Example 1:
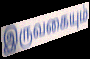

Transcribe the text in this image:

இருவகையும்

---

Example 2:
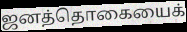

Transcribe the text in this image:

ஜனத்தொகையைக்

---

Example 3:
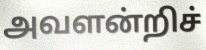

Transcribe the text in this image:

அவளன்றிச்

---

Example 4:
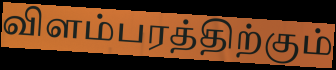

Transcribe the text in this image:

விளம்பரத்திற்கும்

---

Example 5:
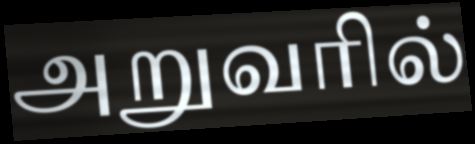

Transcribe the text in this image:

அறுவரில்